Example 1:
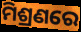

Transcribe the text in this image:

ମିଶ୍ରଣରେ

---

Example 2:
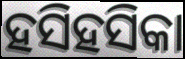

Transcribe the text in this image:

ହସିହସିକା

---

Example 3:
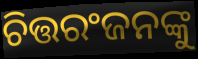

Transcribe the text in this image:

ଚିତ୍ତରଂଜନଙ୍କୁ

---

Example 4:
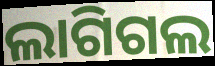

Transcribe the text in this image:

ଲାଗିଗଲ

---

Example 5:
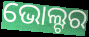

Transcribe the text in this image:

ଭୋଲ୍ଟର